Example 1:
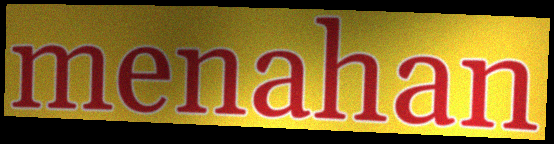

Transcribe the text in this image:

menahan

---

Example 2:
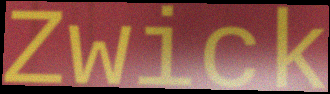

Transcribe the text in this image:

Zwick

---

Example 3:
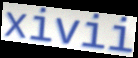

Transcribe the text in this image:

xivii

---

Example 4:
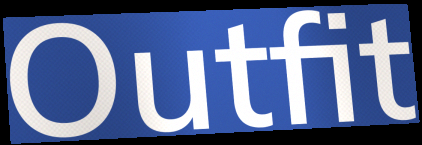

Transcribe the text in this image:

Outfit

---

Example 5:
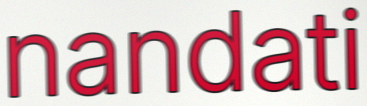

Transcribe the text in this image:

nandati